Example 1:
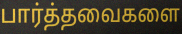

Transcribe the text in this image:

பார்த்தவைகளை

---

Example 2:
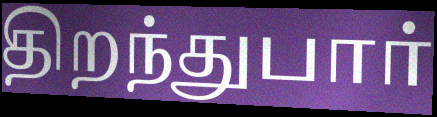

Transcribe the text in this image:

திறந்துபார்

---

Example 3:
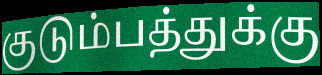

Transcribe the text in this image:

குடும்பத்துக்கு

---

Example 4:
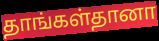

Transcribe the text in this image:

தாங்கள்தானா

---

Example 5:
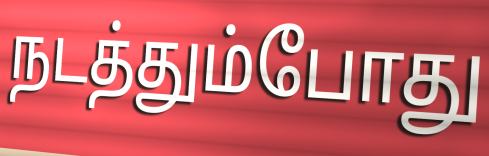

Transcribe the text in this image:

நடத்தும்போது